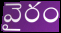
వైరం